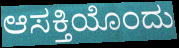
ಆಸಕ್ತಿಯೊಂದು